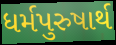
ધર્મપુરુષાર્થ